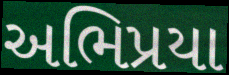
અભિપ્રયા